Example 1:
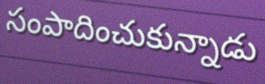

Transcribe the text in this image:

సంపాదించుకున్నాడు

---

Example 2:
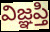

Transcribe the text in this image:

విజ్ఞప్తి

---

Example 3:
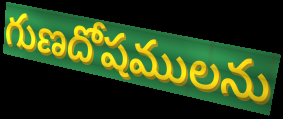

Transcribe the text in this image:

గుణదోషములను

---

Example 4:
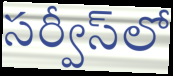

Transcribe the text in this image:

సర్వీస్‌లో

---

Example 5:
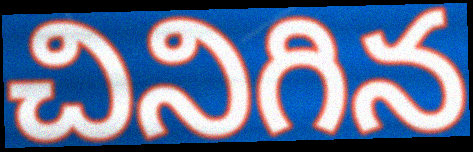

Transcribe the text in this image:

చినిగిన